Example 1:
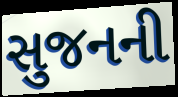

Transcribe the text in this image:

સુજનની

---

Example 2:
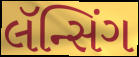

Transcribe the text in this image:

લૅન્સિંગ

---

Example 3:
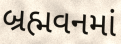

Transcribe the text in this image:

બ્રહ્મવનમાં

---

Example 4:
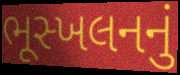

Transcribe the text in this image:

ભૂસ્ખલનનું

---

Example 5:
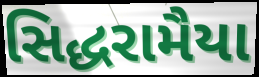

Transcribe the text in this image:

સિદ્ધરામૈયા